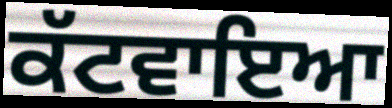
ਕੱਟਵਾਇਆ